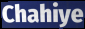
Chahiye